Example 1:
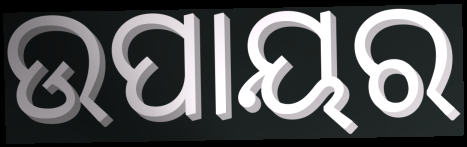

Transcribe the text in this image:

ଉପାୟର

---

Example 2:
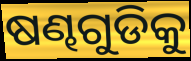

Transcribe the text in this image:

ଷଣ୍ଢଗୁଡିକୁ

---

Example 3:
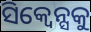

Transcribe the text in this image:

ସିକ୍ୱେନ୍ସକୁ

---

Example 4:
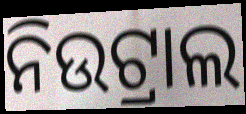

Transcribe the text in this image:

ନିଉଟ୍ରାଲ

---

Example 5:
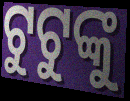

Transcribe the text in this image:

ଟୁଟୁଙ୍କୁ